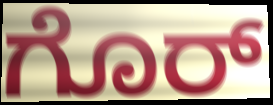
ಗೊರ್